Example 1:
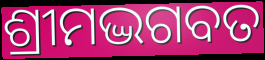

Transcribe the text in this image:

ଶ୍ରୀମଦ୍ଭଗବତ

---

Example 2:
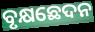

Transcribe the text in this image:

ବୃକ୍ଷଛେଦନ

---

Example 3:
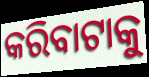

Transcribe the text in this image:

କରିବାଟାକୁ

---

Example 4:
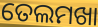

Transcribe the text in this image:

ତେଲମଖା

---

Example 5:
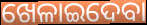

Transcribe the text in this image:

ଖେଳାଇଦେବା